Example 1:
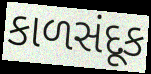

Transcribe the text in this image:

કાળસંદૂક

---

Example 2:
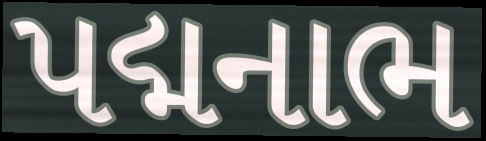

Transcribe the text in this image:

પદ્મનાભ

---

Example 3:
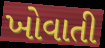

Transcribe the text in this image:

ખોવાતી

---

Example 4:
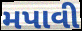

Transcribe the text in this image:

મપાવી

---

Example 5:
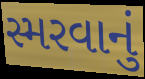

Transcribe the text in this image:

સ્મરવાનું